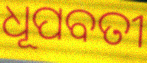
ଧୂପବତୀ